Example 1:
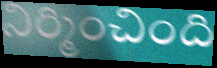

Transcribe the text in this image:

నిర్మించింది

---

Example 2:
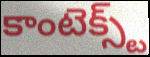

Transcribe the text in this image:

కాంటెక్స్ట్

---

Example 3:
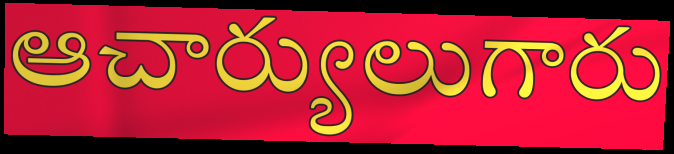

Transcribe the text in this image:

ఆచార్యులుగారు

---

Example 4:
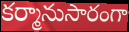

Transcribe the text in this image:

కర్మానుసారంగా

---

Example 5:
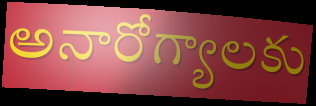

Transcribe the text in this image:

అనారోగ్యాలకు